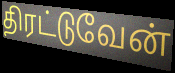
திரட்டுவேன்